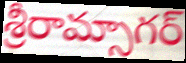
శ్రీరామ్సాగర్